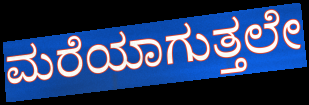
ಮರೆಯಾಗುತ್ತಲೇ